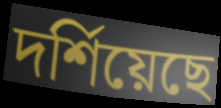
দর্শিয়েছে